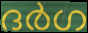
ദർഗ